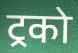
ट्रको